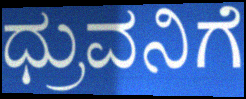
ಧ್ರುವನಿಗೆ